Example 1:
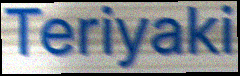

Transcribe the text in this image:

Teriyaki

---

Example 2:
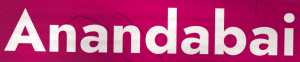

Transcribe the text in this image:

Anandabai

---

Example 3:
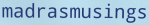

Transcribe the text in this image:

madrasmusings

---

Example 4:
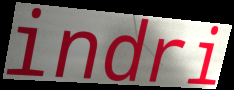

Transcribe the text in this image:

indri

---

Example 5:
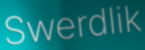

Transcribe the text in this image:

Swerdlik